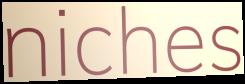
niches